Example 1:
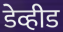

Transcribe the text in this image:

डेव्हीड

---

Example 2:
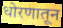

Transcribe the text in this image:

धोरणातून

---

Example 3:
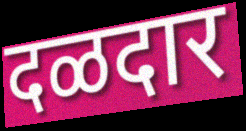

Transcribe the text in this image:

दळदार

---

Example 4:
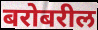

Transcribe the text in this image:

बरोबरील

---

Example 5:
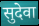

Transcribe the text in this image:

सुदेवा